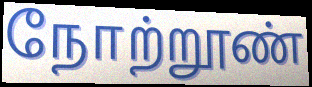
நோற்றூண்